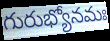
గురుభ్యోనమః